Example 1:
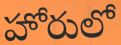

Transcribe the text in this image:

హోరులో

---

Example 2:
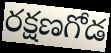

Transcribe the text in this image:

రక్షణగోడ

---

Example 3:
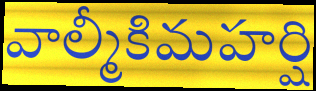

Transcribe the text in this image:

వాల్మీకిమహర్షి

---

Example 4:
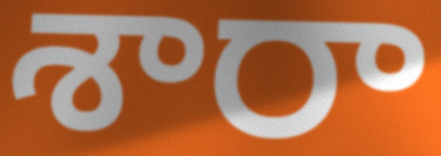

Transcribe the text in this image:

శారా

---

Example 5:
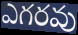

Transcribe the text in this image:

ఎగరవు